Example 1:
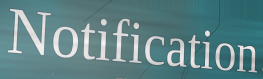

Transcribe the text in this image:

Notification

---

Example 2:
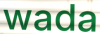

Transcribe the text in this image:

wada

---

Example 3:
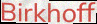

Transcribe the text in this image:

Birkhoff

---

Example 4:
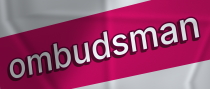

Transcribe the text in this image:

ombudsman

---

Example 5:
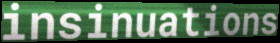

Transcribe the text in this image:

insinuations